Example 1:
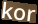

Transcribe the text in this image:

kor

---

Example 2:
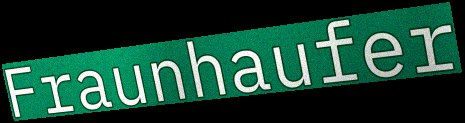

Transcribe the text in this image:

Fraunhaufer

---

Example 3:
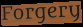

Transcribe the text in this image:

Forgery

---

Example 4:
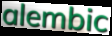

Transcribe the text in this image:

alembic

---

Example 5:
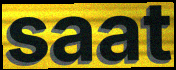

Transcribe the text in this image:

saat